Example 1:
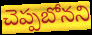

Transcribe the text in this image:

చెప్పబోనని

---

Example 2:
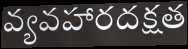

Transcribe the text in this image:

వ్యవహారదక్షత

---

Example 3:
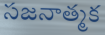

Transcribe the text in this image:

సజనాత్మక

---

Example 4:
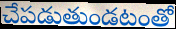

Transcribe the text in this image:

చేపడుతుండటంతో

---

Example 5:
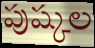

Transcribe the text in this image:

పుష్కల